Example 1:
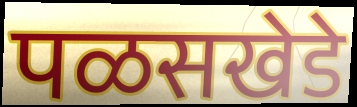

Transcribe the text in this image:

पळसखेडे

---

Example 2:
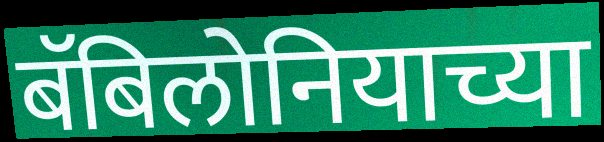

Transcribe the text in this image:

बॅबिलोनियाच्या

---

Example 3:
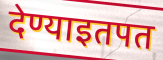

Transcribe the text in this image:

देण्याइतपत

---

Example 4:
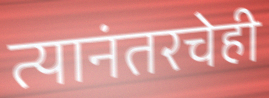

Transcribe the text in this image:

त्यानंतरचेही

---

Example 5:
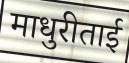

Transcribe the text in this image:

माधुरीताई